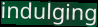
indulging